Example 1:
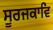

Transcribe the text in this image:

ਸੂਰਜਕਾਵਿ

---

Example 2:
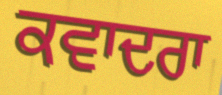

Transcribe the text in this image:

ਕਵਾਦਰਾ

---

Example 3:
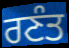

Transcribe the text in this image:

ਰਣੰਤ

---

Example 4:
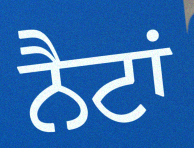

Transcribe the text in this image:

ਨੈਟਾਂ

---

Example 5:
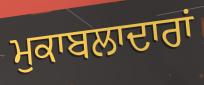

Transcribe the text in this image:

ਮੁਕਾਬਲਾਦਾਰਾਂ